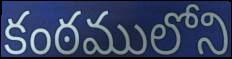
కంఠములోని